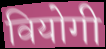
वियोगी